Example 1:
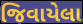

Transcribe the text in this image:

જિવાયેલા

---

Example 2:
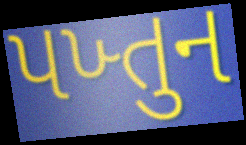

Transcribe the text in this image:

પખ્તુન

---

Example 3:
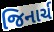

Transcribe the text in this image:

જિનાર્ચ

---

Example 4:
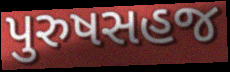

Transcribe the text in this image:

પુરુષસહજ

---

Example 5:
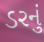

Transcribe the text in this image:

ડરનું